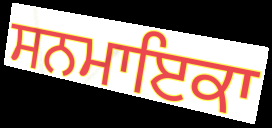
ਸਨਮਾਇਕਾ